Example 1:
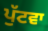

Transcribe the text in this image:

ਪੁੱਟਵਾ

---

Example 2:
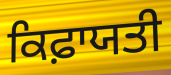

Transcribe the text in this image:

ਕਿਫ਼ਾਯਤੀ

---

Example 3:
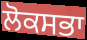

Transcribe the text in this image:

ਲੋਕਸਭਾ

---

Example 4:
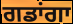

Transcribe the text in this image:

ਗਡਾਂਗਾ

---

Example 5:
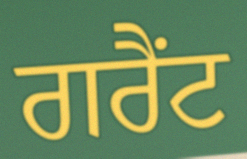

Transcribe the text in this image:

ਗਰੈਂਟ